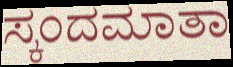
ಸ್ಕಂದಮಾತಾ